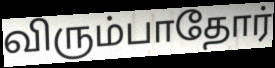
விரும்பாதோர்